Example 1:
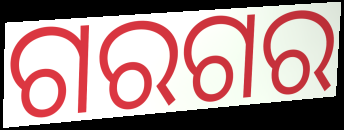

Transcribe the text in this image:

ଗରଗର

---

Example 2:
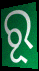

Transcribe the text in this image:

ରୂ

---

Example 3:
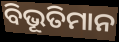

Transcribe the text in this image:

ବିଭୂତିମାନ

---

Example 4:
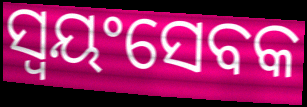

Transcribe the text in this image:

ସ୍ୱୟଂସେବକ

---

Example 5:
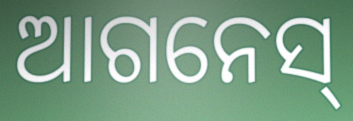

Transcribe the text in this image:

ଆଗନେସ୍